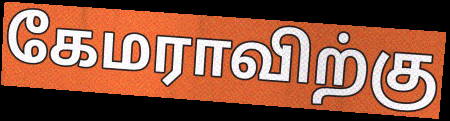
கேமராவிற்கு